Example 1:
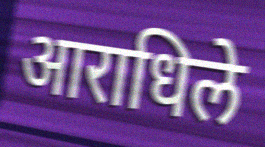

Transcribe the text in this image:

आराधिले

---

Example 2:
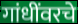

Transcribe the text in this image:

गांधींवरचे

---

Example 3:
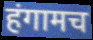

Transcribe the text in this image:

हंगामच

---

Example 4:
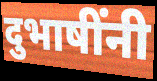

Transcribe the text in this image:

दुभाषींनी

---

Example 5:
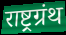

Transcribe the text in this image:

राष्ट्रग्रंथ